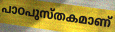
പാഠപുസ്തകമാണ്